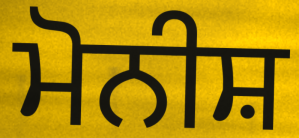
ਮੋਨੀਸ਼